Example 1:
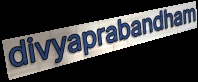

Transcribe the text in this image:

divyaprabandham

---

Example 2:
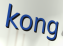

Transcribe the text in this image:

kong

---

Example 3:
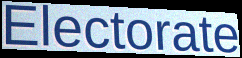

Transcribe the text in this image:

Electorate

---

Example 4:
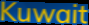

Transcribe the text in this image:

Kuwait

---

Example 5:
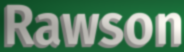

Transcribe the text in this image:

Rawson